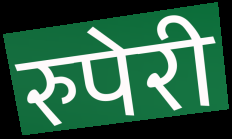
रुपेरी